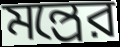
মন্ত্রের